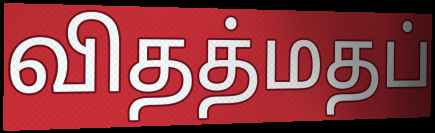
விதத்மதப்